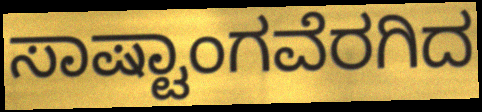
ಸಾಷ್ಟಾಂಗವೆರಗಿದ